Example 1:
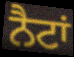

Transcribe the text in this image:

ਨੈਟਾਂ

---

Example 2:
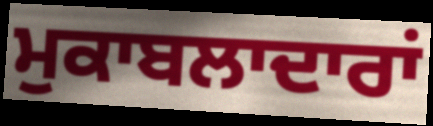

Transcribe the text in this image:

ਮੁਕਾਬਲਾਦਾਰਾਂ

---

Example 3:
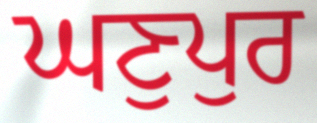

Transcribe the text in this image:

ਘਣੁਪੁਰ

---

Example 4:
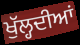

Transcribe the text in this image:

ਖੁੱਲ੍ਹਦੀਆਂ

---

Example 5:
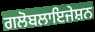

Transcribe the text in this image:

ਗਲੋਬਲਾਇਜੇਸ਼ਨ